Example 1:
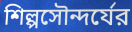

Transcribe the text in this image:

শিল্পসৌন্দর্যের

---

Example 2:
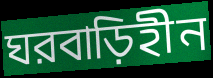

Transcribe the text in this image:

ঘরবাড়িহীন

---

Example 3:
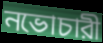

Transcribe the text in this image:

নভোচারী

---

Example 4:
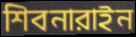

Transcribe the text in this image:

শিবনারাইন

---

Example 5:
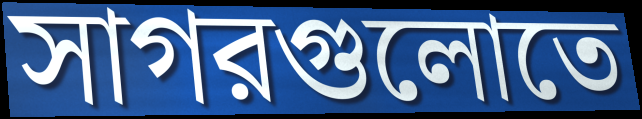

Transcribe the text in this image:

সাগরগুলোতে